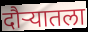
दौऱ्यातला